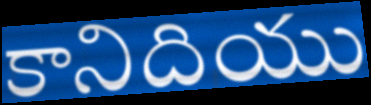
కానిదియు